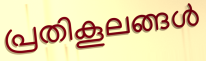
പ്രതികൂലങ്ങൾ